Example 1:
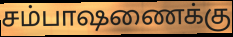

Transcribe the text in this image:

சம்பாஷணைக்கு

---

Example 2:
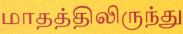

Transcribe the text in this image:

மாதத்திலிருந்து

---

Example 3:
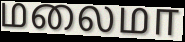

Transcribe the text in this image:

மலைமா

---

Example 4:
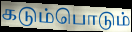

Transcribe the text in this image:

கடும்பொடும்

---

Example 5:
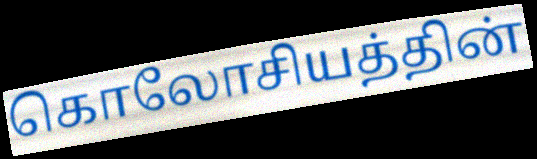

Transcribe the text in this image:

கொலோசியத்தின்